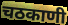
चठकाणी